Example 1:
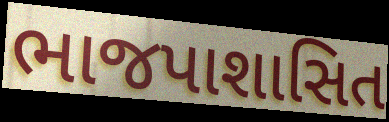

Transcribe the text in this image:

ભાજપાશાસિત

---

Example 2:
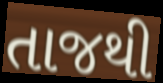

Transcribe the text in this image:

તાજથી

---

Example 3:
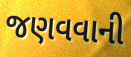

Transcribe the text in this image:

જણવવાની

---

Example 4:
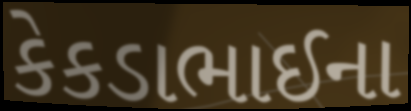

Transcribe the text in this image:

કેકડાભાઈના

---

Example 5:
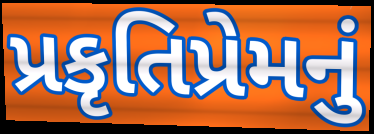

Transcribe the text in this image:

પ્રકૃતિપ્રેમનું